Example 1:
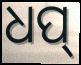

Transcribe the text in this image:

ଧପ୍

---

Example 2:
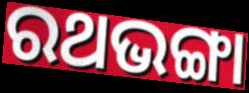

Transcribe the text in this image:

ରଥଭଙ୍ଗା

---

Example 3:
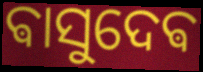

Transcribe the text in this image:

ଵାସୁଦେଵ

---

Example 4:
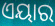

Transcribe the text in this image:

ଏୟାର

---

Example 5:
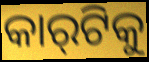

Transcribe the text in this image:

କାର୍‌ଟିକୁ